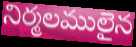
నిర్మలములైన